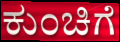
ಕುಂಚಿಗೆ